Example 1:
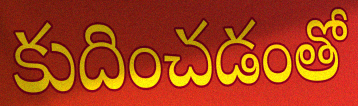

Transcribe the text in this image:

కుదించడంతో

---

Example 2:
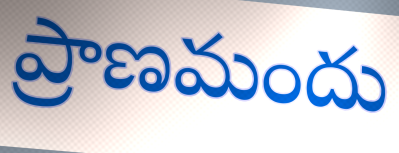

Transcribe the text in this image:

ప్రాణమందు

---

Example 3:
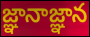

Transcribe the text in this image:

జ్ఞానాజ్ఞాన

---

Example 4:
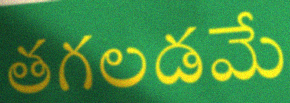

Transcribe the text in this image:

తగలడమే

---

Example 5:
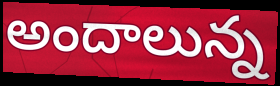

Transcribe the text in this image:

అందాలున్న